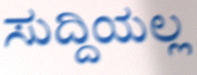
ಸುದ್ದಿಯಲ್ಲ